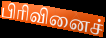
பிரிவினைச்